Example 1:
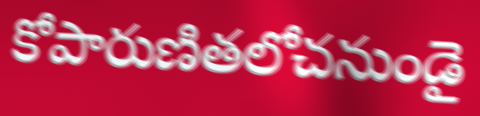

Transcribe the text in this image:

కోపారుణితలోచనుండై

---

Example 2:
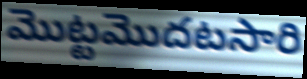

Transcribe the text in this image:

మొట్టమొదటసారి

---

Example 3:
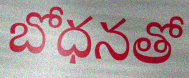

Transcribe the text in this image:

బోధనతో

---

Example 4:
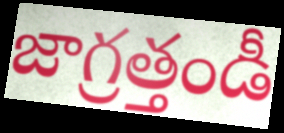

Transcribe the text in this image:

జాగ్రత్తండీ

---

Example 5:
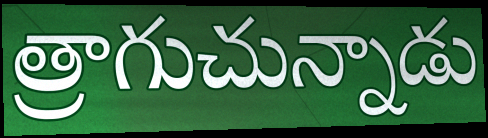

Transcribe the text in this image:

త్రాగుచున్నాడు